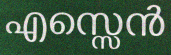
എസ്സെൻ